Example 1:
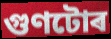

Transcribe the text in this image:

গুণটোৰ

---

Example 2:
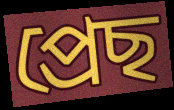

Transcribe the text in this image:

প্ৰেছ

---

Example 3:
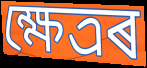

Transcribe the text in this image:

ক্ষেত্ৰৰ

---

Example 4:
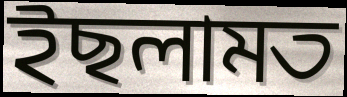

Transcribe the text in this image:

ইছলামত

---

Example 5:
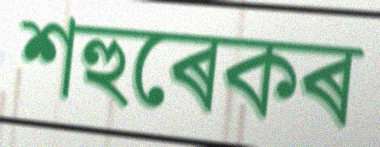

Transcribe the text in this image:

শহুৰেকৰ